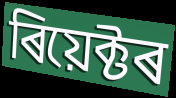
ৰিয়েক্টৰ